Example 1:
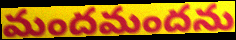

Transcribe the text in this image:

మందమందను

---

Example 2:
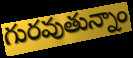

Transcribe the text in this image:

గురవుతున్నాం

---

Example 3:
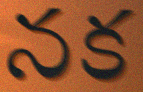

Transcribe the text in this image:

నక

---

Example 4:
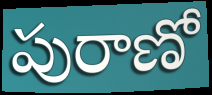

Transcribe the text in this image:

పురాణో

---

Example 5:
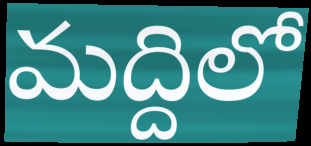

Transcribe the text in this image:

మద్దిలో